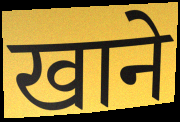
खाने